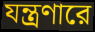
যন্ত্রণারে